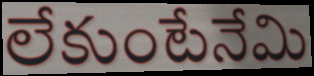
లేకుంటేనేమి